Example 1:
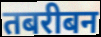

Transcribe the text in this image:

तबरीबन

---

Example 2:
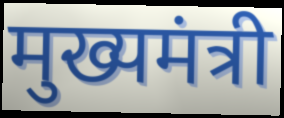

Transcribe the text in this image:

मुख्‍यमंत्री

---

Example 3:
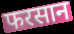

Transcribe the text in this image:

फरसान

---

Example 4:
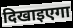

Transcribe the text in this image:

दिखाइएगा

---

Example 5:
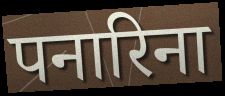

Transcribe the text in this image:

पनारिना